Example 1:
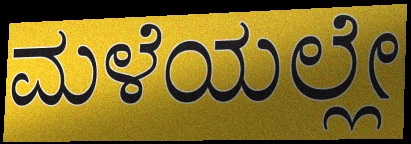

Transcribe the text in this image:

ಮಳೆಯಲ್ಲೇ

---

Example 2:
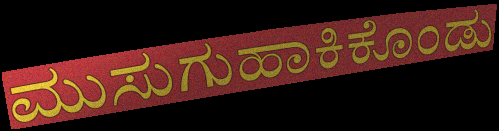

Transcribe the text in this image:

ಮುಸುಗುಹಾಕಿಕೊಂಡು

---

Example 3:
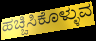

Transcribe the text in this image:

ಹಚ್ಚಿಸಿಕೊಳ್ಳುವ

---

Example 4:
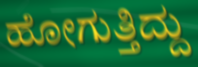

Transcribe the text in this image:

ಹೋಗುತ್ತಿದ್ದು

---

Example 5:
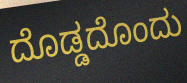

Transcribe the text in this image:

ದೊಡ್ಡದೊಂದು